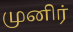
முனிர்